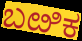
ಬೞಿಕ